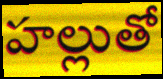
హల్లుతో